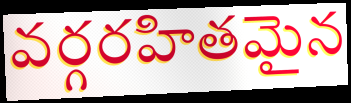
వర్గరహితమైన